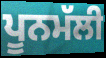
ਪੂਨਮੱਲੀ